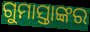
ଗୁମାସ୍ତାଙ୍କର